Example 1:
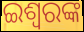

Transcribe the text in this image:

ଇଶ୍ୱରଙ୍କ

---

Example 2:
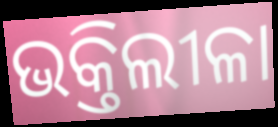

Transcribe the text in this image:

ଭକ୍ତିଲୀଳା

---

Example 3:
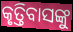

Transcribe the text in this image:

କୃତ୍ତିବାସଙ୍କୁ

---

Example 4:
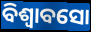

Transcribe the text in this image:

ବିଶ୍ୱାବସୋ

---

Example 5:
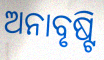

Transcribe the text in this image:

ଅନାବୃଷ୍ଟି